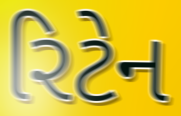
રિટેન